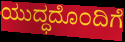
ಯುದ್ಧದೊಂದಿಗೆ